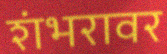
शंभरावर